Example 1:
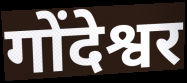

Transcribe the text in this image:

गोंदेश्वर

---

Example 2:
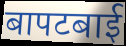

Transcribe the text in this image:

बापटबाई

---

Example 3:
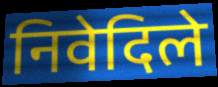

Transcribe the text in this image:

निवेदिले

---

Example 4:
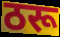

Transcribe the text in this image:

ठरू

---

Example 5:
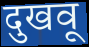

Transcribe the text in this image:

दुखवू